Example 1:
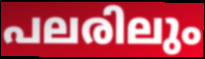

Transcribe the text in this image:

പലരിലും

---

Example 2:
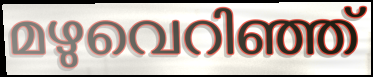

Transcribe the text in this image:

മഴുവെറിഞ്ഞ്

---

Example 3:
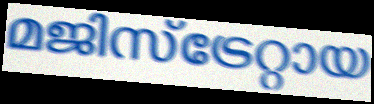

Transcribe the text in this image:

മജിസ്ട്രേറ്റായ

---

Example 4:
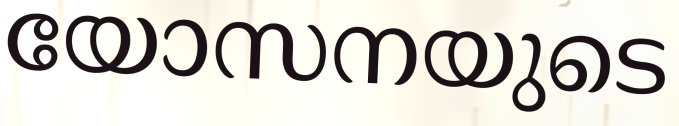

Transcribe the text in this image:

യോസനയുടെ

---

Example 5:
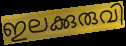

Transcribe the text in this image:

ഇലക്കുരുവി